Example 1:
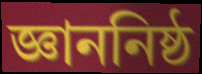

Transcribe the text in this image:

জ্ঞাননিষ্ঠ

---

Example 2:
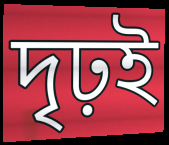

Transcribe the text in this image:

দৃঢ়ই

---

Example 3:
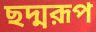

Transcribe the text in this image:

ছদ্মরূপ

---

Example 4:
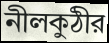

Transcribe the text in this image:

নীলকুঠীর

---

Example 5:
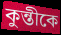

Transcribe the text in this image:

কুন্তীকে